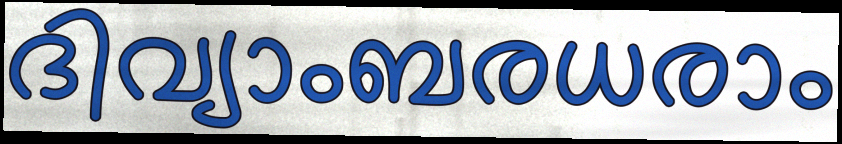
ദിവ്യാംബരധരാം